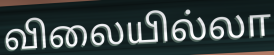
விலையில்லா